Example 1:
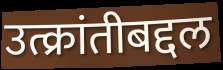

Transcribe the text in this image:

उत्क्रांतीबद्दल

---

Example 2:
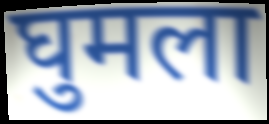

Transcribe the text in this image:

घुमला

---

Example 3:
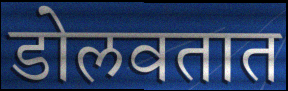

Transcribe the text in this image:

डोलवतात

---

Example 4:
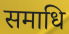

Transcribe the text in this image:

समाधि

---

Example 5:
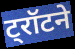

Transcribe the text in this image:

ट्रॉटने